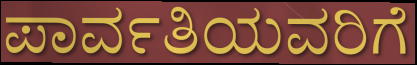
ಪಾರ್ವತಿಯವರಿಗೆ